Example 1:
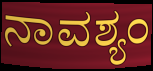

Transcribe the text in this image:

ನಾವಶ್ಯಂ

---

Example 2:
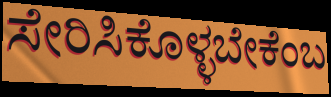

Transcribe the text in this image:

ಸೇರಿಸಿಕೊಳ್ಳಬೇಕೆಂಬ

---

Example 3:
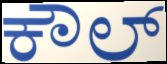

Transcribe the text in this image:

ಕೌಲ್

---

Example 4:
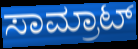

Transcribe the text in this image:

ಸಾಮ್ರಾಟ್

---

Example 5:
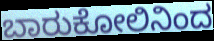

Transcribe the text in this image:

ಬಾರುಕೋಲಿನಿಂದ